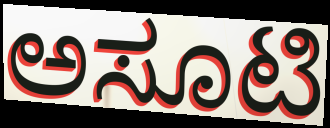
ಅಸೂಟಿ